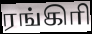
ரங்கிரி